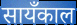
सायँकाल